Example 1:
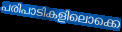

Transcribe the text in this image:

പരിപാടികളിലൊക്കെ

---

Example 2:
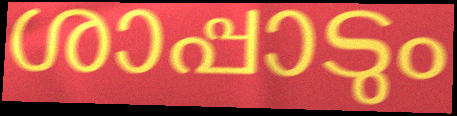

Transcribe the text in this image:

ശാപ്പാടും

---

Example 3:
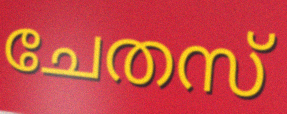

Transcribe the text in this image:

ചേതസ്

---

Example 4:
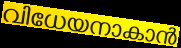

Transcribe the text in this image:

വിധേയനാകാൻ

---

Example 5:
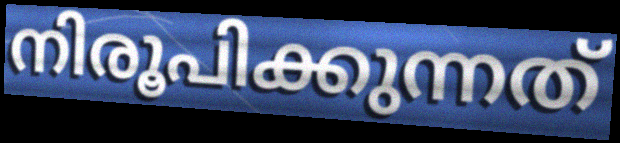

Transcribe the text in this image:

നിരൂപിക്കുന്നത്